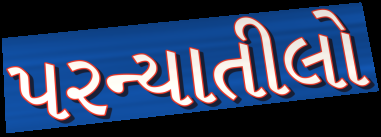
પરન્યાતીલો